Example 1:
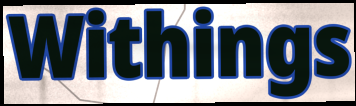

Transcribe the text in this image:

Withings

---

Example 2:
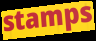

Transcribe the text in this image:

stamps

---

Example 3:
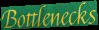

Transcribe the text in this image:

Bottlenecks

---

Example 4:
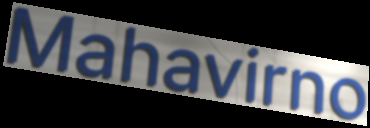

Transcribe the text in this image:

Mahavirno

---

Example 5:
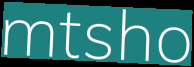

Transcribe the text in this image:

mtsho